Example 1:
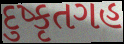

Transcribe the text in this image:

દુષ્કૃતગહ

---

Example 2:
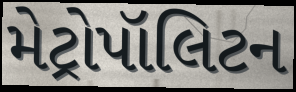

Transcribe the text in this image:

મેટ્રોપૉલિટન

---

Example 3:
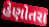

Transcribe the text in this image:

હેણોતરા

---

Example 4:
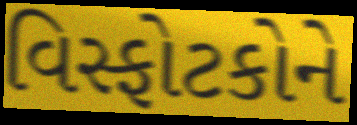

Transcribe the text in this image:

વિસ્ફોટકોને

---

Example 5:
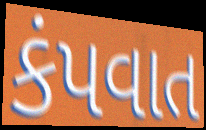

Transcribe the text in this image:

કંપવાત